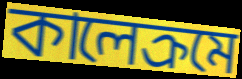
কালেক্রমে